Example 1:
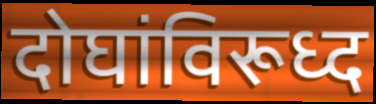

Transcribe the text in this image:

दोघांविरूध्द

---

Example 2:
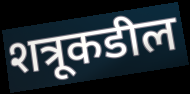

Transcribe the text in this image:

शत्रूकडील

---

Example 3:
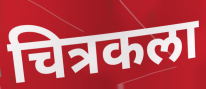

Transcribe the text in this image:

चित्रकला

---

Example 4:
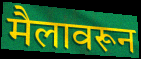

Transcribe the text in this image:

मैलावरून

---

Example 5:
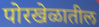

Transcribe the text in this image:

पोरखेळातील